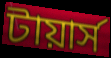
টায়ার্স